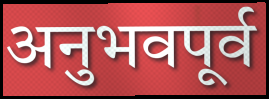
अनुभवपूर्व